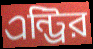
এন্ট্রির